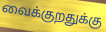
வைக்குறதுக்கு